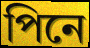
পিনে